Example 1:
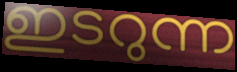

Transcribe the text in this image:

ഇടറുന്ന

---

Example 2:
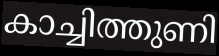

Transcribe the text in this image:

കാച്ചിത്തുണി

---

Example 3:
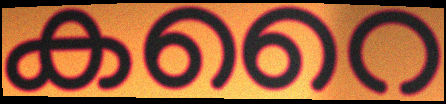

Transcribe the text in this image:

കറൈ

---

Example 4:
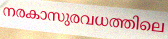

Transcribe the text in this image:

നരകാസുരവധത്തിലെ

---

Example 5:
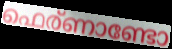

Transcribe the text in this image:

ഫെര്ണാണ്ടോ